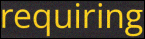
requiring